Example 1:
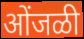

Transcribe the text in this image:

ओंजळी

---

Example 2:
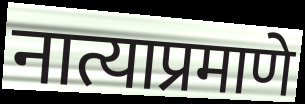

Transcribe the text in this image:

नात्याप्रमाणे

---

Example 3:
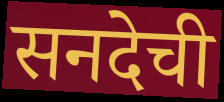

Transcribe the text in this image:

सनदेची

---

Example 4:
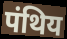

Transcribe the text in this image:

पंथिय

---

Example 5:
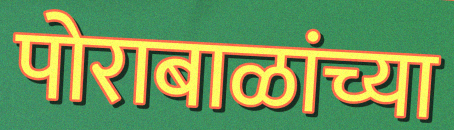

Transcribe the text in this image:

पोराबाळांच्या